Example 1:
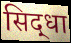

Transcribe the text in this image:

सिद्धा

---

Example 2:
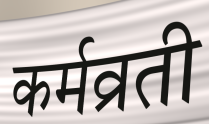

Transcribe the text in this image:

कर्मव्रती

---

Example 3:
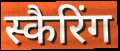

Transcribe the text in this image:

स्कैरिंग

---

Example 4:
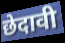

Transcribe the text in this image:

छेदावी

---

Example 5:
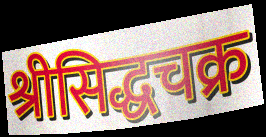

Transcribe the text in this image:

श्रीसिद्धचक्र